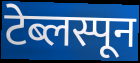
टेब्लस्पून